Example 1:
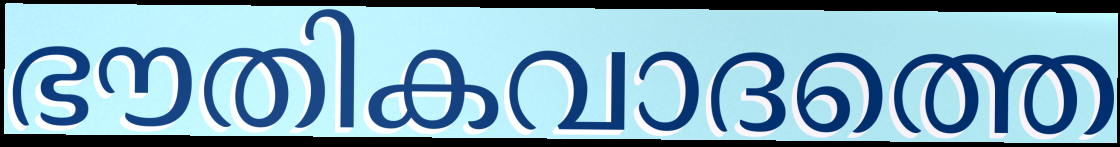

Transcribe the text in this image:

ഭൗതികവാദത്തെ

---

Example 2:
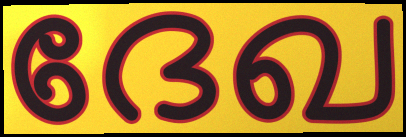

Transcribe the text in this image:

ദേഖ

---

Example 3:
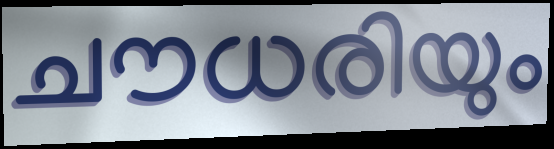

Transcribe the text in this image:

ചൗധരിയും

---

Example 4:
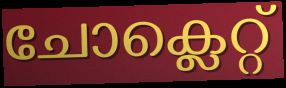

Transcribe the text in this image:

ചോക്ലെറ്റ്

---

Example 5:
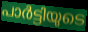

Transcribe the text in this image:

പാർട്ടിയുടെ